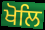
ਖੋਲਿ